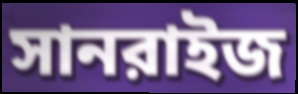
সানরাইজ